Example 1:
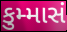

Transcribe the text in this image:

કુમ્માસં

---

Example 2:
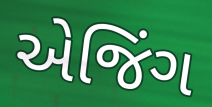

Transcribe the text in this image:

એજિંગ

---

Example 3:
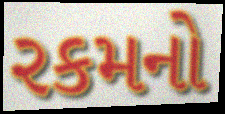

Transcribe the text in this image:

રકમનો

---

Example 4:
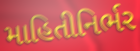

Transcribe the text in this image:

માહિતીનિર્ભર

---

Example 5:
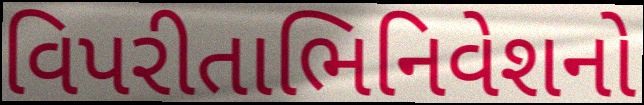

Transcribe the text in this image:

વિપરીતાભિનિવેશનો